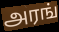
அரங்